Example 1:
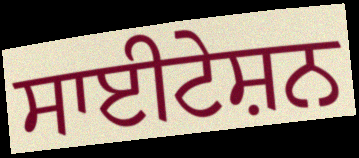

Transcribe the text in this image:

ਸਾਈਟੇਸ਼ਨ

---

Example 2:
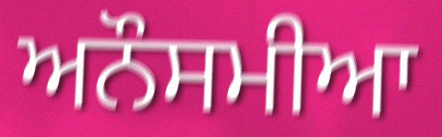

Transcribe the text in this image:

ਅਨੌਸਮੀਆ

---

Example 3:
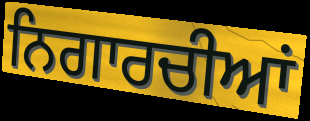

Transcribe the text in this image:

ਨਿਗਾਰਚੀਆਂ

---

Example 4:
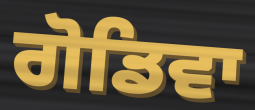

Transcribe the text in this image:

ਗੋਡਿਵਾ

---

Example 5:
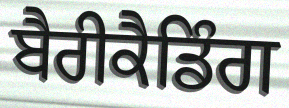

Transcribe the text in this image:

ਬੈਰੀਕੈਡਿੰਗ